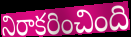
నిరాకరించింది